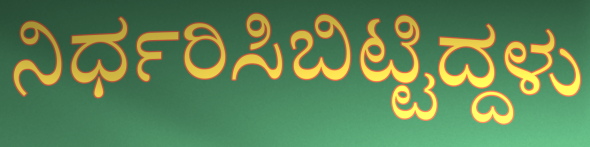
ನಿರ್ಧರಿಸಿಬಿಟ್ಟಿದ್ದಳು